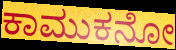
ಕಾಮುಕನೋ